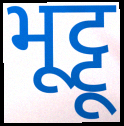
भूट्टू